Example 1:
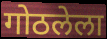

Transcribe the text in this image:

गोठलेला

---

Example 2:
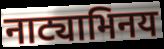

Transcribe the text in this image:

नाट्याभिनय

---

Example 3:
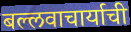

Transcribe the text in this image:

बल्लवाचार्याची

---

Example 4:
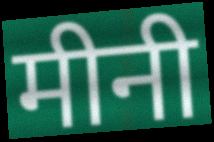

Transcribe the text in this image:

मीनी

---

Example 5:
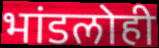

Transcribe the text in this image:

भांडलोही